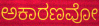
ಅಕಾರಣವೋ